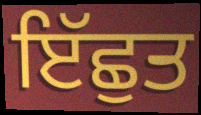
ਇੱਛੁਤ